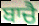
ਬਾਚੈ